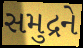
સમુદ્રને